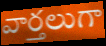
వార్తలుగా